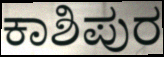
ಕಾಶಿಪುರ